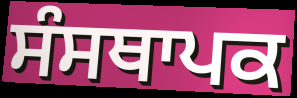
ਸੰਸਥਾਪਕ